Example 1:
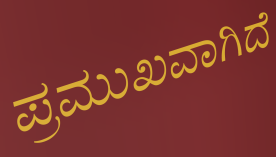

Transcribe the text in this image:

ಪ್ರಮುಖವಾಗಿದೆ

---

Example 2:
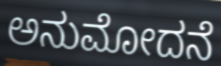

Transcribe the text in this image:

ಅನುಮೋದನೆ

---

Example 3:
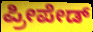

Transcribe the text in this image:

ಪ್ರೀಪೇಡ್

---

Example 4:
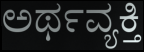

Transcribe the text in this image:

ಅರ್ಥವ್ಯಕ್ತಿ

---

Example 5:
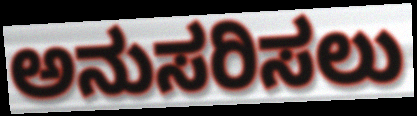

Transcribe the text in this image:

ಅನುಸರಿಸಲು